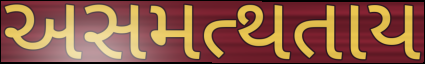
અસમત્થતાય